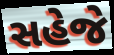
સહેજે